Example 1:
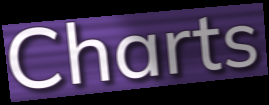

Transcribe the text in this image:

Charts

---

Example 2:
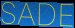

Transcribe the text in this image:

SADE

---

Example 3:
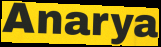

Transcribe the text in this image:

Anarya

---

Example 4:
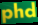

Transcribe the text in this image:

phd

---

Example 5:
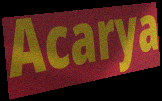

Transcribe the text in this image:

Acarya